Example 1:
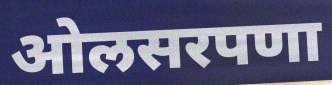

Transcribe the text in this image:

ओलसरपणा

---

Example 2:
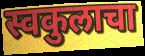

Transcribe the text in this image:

स्वकुलाचा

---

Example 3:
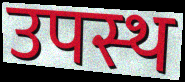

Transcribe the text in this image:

उपस्थ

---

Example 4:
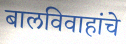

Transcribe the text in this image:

बालविवाहांचे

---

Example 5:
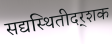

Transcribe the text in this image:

सद्यस्थितीदर्शक